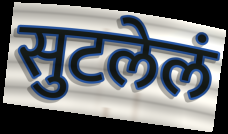
सुटलेलं